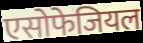
एसोफेजियल